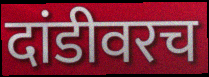
दांडीवरच